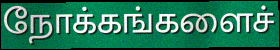
நோக்கங்களைச்